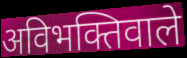
अविभक्तिवाले